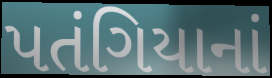
પતંગિયાનાં